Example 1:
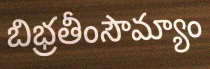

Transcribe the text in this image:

బిభ్రతీంసౌమ్యాం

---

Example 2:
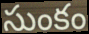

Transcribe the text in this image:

సుంకం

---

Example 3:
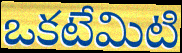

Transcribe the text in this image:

ఒకటేమిటి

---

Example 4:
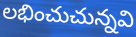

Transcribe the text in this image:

లభించుచున్నవి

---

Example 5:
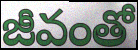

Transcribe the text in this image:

జీవంతో